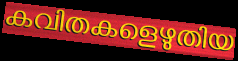
കവിതകളെഴുതിയ